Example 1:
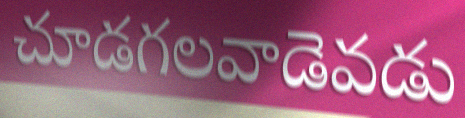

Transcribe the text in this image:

చూడగలవాడెవడు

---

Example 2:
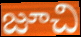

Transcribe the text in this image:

జూచి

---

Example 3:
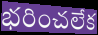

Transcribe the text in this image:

భరించలేక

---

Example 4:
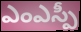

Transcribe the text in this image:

ఎంఎస్పీ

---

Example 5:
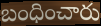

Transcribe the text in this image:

బంధించారు